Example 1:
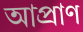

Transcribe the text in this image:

আপ্ৰাণ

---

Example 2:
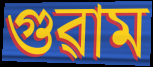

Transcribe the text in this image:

গুৱাম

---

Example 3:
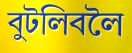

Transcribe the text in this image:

বুটলিবলৈ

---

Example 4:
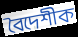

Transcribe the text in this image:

বৈদেশীক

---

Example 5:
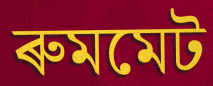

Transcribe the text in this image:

ৰুমমেট